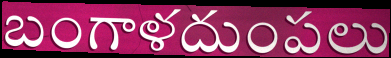
బంగాళదుంపలు